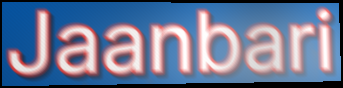
Jaanbari